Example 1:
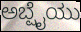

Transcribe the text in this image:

ಅಬ್ಷೈಯು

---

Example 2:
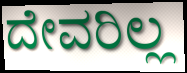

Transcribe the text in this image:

ದೇವರಿಲ್ಲ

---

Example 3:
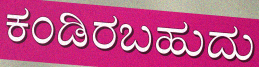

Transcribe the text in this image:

ಕಂಡಿರಬಹುದು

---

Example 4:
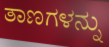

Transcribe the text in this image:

ತಾಣಗಳನ್ನು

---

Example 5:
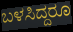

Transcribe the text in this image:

ಬಳಸಿದ್ದರೂ